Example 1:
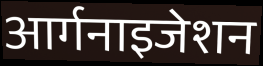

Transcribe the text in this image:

आर्गनाइजेशन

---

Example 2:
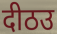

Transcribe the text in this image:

दीठउ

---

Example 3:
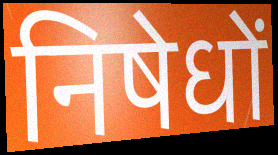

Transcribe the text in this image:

निषेधों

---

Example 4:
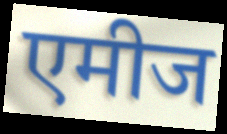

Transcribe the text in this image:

एमीज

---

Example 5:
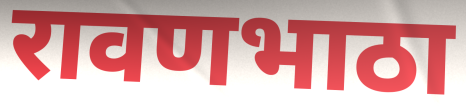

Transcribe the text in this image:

रावणभाठा